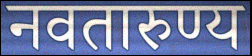
नवतारुण्य